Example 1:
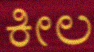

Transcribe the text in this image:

ಕೀಲ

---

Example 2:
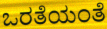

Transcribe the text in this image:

ಒರತೆಯಂತೆ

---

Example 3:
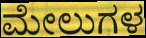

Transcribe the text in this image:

ಮೇಲುಗಳ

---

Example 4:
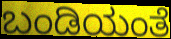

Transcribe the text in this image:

ಬಂಡಿಯಂತೆ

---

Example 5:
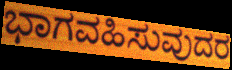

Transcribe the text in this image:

ಭಾಗವಹಿಸುವುದರ